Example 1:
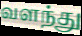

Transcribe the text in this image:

வளந்து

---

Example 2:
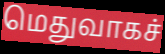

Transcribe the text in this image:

மெதுவாகச்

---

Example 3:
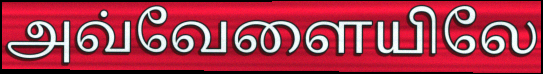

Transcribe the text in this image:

அவ்வேளையிலே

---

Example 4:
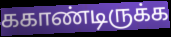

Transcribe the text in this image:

ககாண்டிருக்க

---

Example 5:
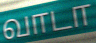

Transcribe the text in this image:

வாடா